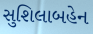
સુશિલાબહેન